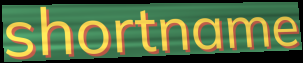
shortname